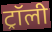
ट्रॉली